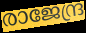
രാജേന്ദ്ര